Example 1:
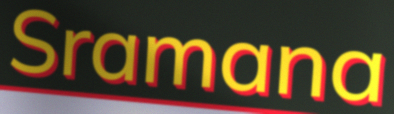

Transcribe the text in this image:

Sramana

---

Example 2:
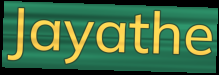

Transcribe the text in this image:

Jayathe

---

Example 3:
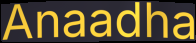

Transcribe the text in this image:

Anaadha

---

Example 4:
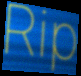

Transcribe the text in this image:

Rip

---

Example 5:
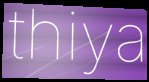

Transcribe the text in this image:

thiya